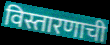
विस्तारणाची